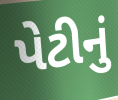
પેટીનું